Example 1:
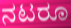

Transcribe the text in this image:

ನಟರೂ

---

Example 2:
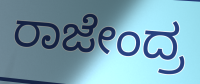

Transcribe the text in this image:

ರಾಜೇಂದ್ರ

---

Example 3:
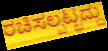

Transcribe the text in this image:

ರಚಿಸಲ್ಪಟ್ಟದ್ದು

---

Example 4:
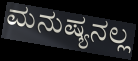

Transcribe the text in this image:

ಮನುಷ್ಯನಲ್ಲ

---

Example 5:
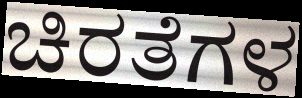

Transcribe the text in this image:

ಚಿರತೆಗಳ